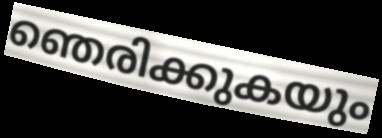
ഞെരിക്കുകയും